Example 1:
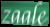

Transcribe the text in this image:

zaale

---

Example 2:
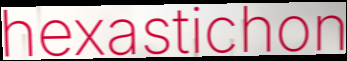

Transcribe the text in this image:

hexastichon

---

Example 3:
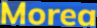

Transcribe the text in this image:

Morea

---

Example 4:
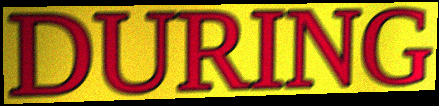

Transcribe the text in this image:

DURING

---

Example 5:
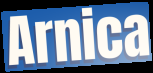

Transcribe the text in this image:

Arnica